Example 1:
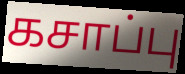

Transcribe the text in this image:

கசாப்பு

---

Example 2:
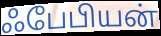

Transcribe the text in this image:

ஃபேபியன்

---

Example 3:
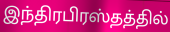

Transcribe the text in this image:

இந்திரபிரஸ்தத்தில்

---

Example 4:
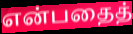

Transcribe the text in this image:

என்பதைத்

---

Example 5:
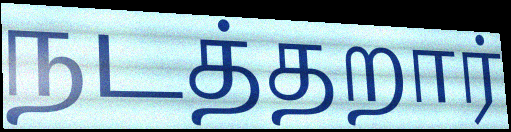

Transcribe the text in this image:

நடத்தறார்